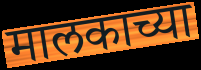
मालकाच्या